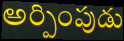
అర్పింపుడు